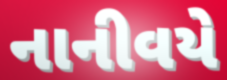
નાનીવયે